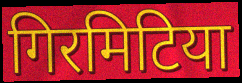
गिरमिटिया